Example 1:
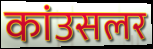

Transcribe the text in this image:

कांउसलर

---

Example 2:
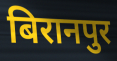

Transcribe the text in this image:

बिरानपुर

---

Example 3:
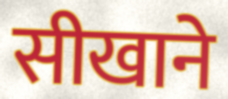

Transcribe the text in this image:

सीखाने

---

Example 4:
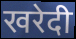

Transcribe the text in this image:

खरेदी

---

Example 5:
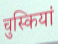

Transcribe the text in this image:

चुस्कियां